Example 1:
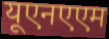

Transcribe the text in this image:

यूएनएएम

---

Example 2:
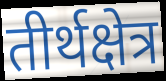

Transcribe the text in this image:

तीर्थक्षेत्र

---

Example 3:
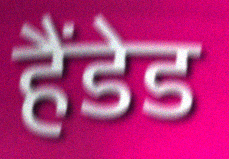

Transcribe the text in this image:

हैंडेड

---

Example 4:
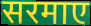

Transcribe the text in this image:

सरमाए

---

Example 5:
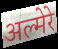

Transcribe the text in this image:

अल्मेरे